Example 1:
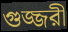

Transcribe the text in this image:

গুজ্জরী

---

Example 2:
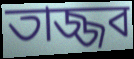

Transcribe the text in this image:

তাজ্জব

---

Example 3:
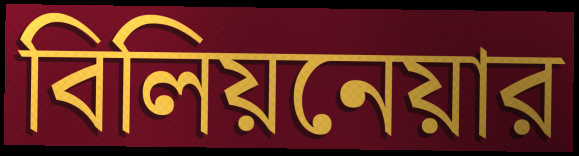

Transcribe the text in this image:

বিলিয়নেয়ার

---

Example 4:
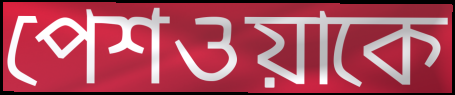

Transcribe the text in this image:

পেশওয়াকে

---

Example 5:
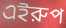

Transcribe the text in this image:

এইরুপ